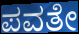
ಪವತೇ